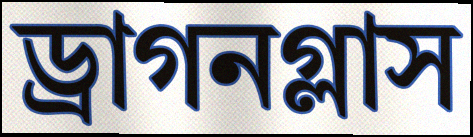
ড্রাগনগ্লাস